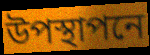
উপস্থাপনে